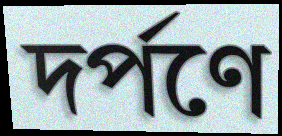
দর্পণে